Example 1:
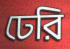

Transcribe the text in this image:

ঢেরি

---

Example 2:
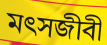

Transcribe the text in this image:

মৎসজীবী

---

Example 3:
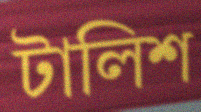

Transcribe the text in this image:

টালিশ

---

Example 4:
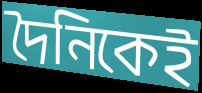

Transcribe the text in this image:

দৈনিকেই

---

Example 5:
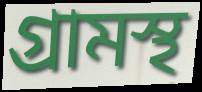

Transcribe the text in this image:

গ্রামস্থ